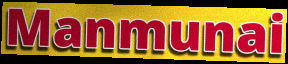
Manmunai